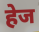
हेज